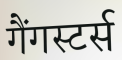
गैंगस्टर्स